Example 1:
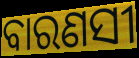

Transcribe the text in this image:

ବାରଣସୀ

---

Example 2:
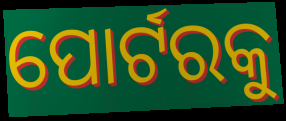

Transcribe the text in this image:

ପୋର୍ଟରକୁ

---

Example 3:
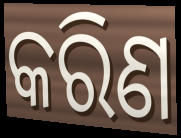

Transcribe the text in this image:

କରିଣ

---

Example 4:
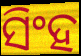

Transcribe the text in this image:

ସିଂହ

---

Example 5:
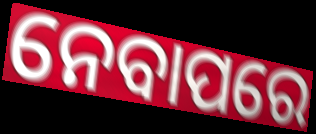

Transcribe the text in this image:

ନେବାପରେ